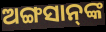
ଅଙ୍ଗସାନ୍‌ଙ୍କ